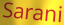
Sarani